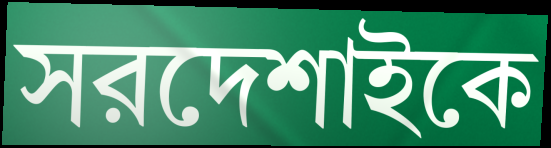
সরদেশাইকে